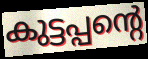
കുട്ടപ്പന്റെ